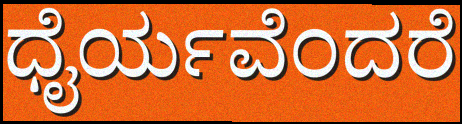
ಧೈರ್ಯವೆಂದರೆ